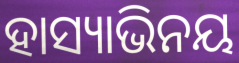
ହାସ୍ୟାଭିନୟ